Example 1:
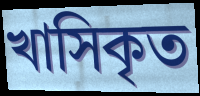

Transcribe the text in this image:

খাসিকৃত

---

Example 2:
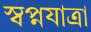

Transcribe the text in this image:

স্বপ্নযাত্রা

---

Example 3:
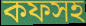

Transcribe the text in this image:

কফসহ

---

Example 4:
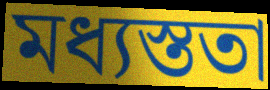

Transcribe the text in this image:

মধ্যস্ততা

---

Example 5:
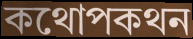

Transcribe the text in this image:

কথোপকথন